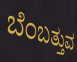
ಬೆಂಬತ್ತುವ